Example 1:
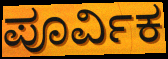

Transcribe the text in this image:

ಪೂರ್ವಿಕ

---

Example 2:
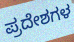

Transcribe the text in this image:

ಪ್ರದೇಶಗಳ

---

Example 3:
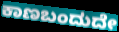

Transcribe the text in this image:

ಕಾಣಬಂದುದೇ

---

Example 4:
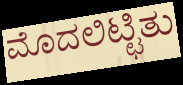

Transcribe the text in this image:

ಮೊದಲಿಟ್ಟಿತು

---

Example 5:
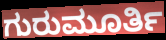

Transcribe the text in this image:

ಗುರುಮೂರ್ತಿ